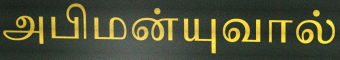
அபிமன்யுவால்